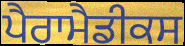
ਪੈਰਾਮੈਡੀਕਸ